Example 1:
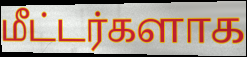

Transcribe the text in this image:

மீட்டர்களாக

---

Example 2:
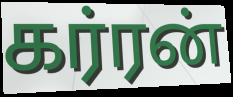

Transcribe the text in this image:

கர்ரன்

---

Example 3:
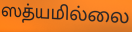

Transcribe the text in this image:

ஸத்யமில்லை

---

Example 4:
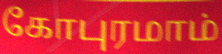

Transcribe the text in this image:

கோபுரமாம்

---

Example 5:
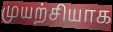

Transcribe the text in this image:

முயற்சியாக